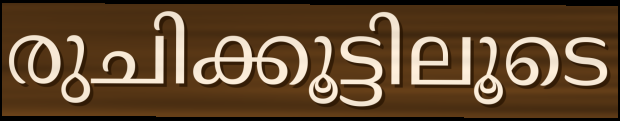
രുചിക്കൂട്ടിലൂടെ